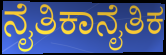
ನೈತಿಕಾನೈತಿಕ